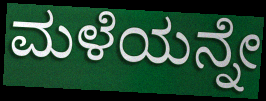
ಮಳೆಯನ್ನೇ